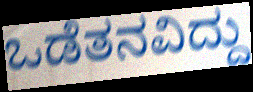
ಒಡೆತನವಿದ್ದು